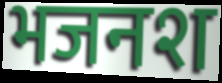
भजनश